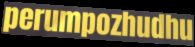
perumpozhudhu